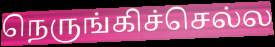
நெருங்கிச்செல்ல